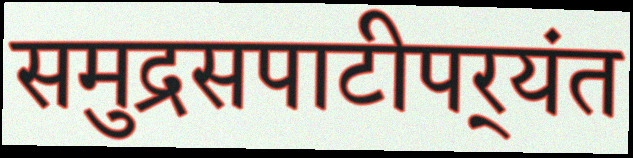
समुद्रसपाटीपर्यंत